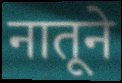
नातूने